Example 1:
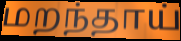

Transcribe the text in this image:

மறந்தாய்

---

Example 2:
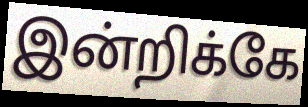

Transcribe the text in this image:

இன்றிக்கே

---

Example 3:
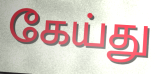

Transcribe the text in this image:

கேய்து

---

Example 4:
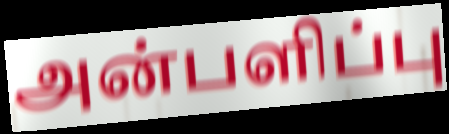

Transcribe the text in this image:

அன்பளிப்பு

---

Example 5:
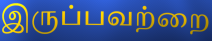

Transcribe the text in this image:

இருப்பவற்றை